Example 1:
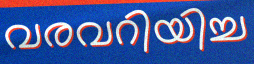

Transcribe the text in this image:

വരവറിയിച്ച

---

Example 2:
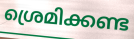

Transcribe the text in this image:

ശ്രെമിക്കണ്ട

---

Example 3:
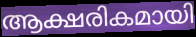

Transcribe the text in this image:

ആക്ഷരികമായി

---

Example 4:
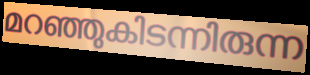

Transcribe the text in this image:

മറഞ്ഞുകിടന്നിരുന്ന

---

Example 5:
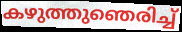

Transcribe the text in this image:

കഴുത്തുഞെരിച്ച്